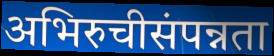
अभिरुचीसंपन्नता